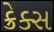
ક્રેક્સ